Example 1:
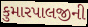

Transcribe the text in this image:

કુમારપાલજીની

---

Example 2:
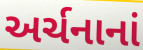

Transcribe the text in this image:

અર્ચનાનાં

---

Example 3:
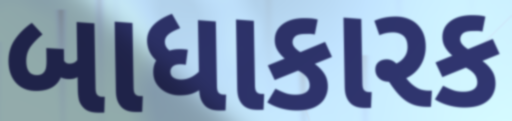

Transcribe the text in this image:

બાધાકારક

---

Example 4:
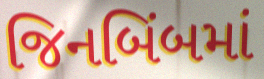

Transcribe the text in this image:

જિનબિંબમાં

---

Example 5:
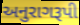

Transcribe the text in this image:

અનુરાગરૂપી